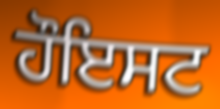
ਹੌਇਸਟ